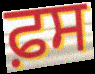
ਫ਼ਸ